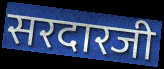
सरदारजी